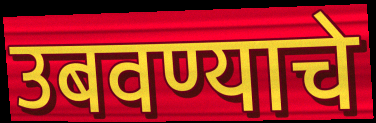
उबवण्याचे